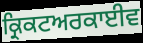
ਕ੍ਰਿਕਟਅਰਕਾਈਵ